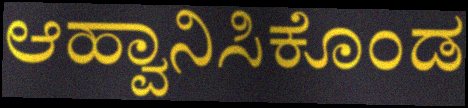
ಆಹ್ವಾನಿಸಿಕೊಂಡ